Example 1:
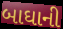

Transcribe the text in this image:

બાઘાની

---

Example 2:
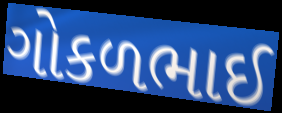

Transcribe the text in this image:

ગોકળભાઈ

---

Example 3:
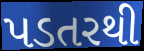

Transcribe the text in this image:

પડતરથી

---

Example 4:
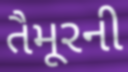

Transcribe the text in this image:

તૈમૂરની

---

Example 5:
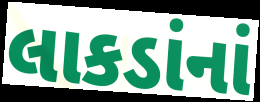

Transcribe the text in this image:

લાકડાંનાં